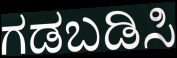
ಗಡಬಡಿಸಿ